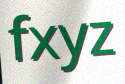
fxyz